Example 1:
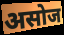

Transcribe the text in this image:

असोज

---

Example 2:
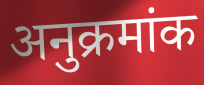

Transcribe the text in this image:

अनुक्रमांक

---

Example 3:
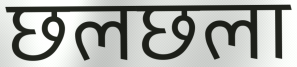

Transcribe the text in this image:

छलछला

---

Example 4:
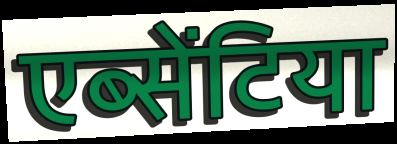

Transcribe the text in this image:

एब्सेंटिया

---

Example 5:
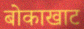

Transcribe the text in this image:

बोकाखाट